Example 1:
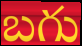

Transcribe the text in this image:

బగు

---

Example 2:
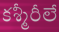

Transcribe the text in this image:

కశ్మీరీలే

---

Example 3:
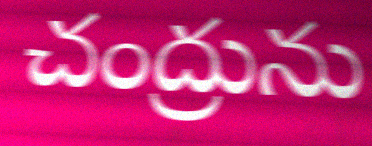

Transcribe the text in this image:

చంద్రును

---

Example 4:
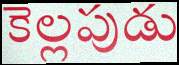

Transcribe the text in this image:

కెల్లపుడు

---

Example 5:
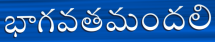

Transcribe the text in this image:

భాగవతమందలి